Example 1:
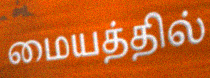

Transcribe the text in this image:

மையத்தில்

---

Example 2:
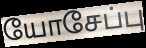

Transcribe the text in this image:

யோசேப்பு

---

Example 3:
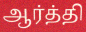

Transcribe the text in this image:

ஆர்த்தி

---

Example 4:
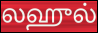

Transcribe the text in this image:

லஹுல்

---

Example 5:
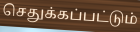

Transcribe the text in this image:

செதுக்கப்பட்டும்